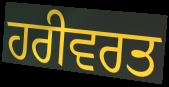
ਹਰੀਵਰਤ